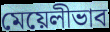
মেয়েলীভাব